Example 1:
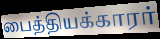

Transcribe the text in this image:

பைத்தியக்காரர்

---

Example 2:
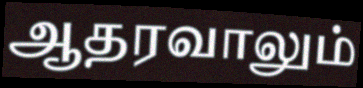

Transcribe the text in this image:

ஆதரவாலும்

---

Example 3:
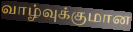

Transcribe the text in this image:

வாழ்வுக்குமான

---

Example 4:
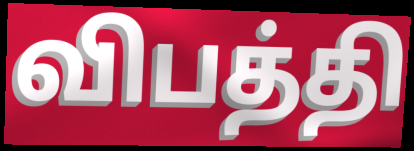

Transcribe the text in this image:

விபத்தி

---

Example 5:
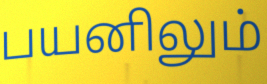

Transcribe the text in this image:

பயனிலும்